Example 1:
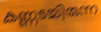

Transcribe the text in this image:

കണ്ണടച്ചിരുന്ന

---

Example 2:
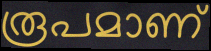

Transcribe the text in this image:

രൂപമാണ്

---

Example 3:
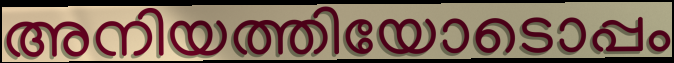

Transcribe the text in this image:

അനിയത്തിയോടൊപ്പം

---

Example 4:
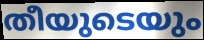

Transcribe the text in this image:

തീയുടെയും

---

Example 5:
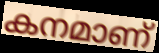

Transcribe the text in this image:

കനമാണ്